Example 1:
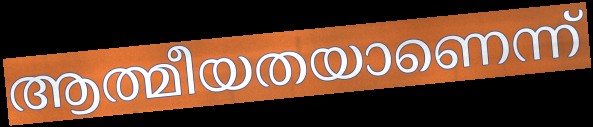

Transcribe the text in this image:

ആത്മീയതയാണെന്ന്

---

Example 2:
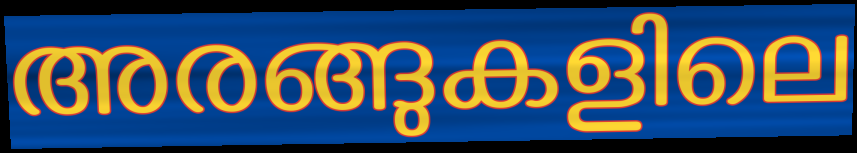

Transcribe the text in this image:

അരങ്ങുകളിലെ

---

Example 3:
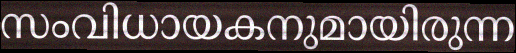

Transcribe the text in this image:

സംവിധായകനുമായിരുന്ന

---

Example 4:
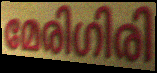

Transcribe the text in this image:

മേരിഗിരി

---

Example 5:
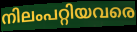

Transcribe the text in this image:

നിലംപറ്റിയവരെ